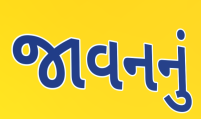
જાવનનું